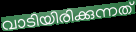
വാടിയിരിക്കുന്നത്